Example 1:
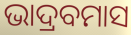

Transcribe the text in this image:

ଭାଦ୍ରବମାସ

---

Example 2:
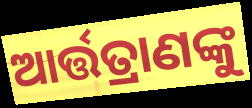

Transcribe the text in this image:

ଆର୍ତ୍ତତ୍ରାଣଙ୍କୁ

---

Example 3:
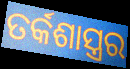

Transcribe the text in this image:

ତର୍କଶାସ୍ତ୍ରର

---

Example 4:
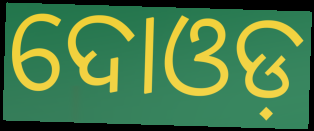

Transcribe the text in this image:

ଦୋଓଡ଼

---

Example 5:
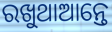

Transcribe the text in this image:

ରଖୁଥାଆନ୍ତେ